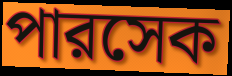
পারসেক